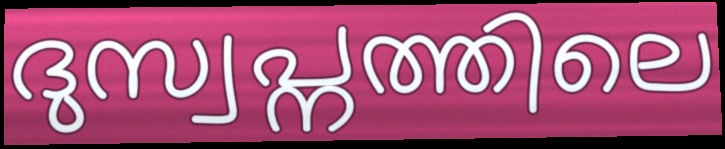
ദുസ്വപ്നത്തിലെ